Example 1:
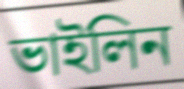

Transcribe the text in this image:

ভাইলিন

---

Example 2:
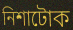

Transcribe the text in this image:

নিশাটোক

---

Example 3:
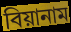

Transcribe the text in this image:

বিয়ানাম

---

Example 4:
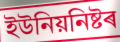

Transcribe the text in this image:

ইউনিয়নিষ্টৰ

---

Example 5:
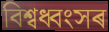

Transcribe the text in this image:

বিশ্বধ্বংসৰ